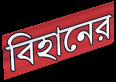
বিহানের